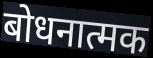
बोधनात्मक